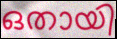
ഒതായി